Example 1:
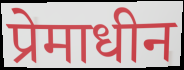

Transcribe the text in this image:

प्रेमाधीन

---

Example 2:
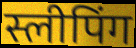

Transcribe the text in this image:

स्लीपिंग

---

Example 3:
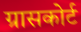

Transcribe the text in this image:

ग्रासकोर्ट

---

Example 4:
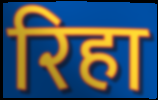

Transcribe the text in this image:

रिहा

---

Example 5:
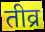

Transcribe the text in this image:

तीव्र